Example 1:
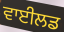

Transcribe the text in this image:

ਵਾਈਲਡ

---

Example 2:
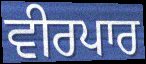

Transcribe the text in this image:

ਵੀਰਪਾਰ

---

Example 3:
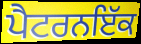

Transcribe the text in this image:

ਪੈਟਰਨਇੱਕ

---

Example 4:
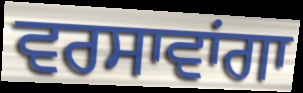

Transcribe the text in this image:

ਵਰਸਾਵਾਂਗਾ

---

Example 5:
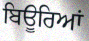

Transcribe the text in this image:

ਬਿਊਰਿਆਂ